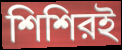
শিশিরই